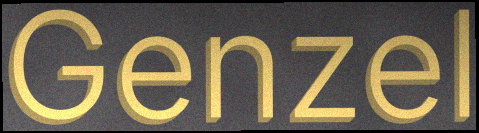
Genzel